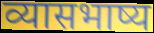
व्यासभाष्य